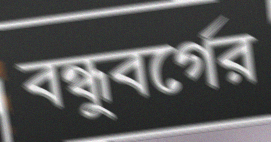
বন্ধুবর্গের